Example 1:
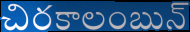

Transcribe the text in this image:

చిరకాలంబున్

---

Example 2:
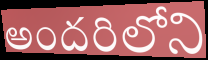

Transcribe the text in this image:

అందరిలోని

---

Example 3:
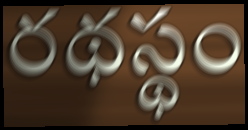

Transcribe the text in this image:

రథస్థం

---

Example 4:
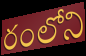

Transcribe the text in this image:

రంలోని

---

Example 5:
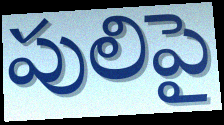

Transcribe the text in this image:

పులిపై